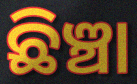
ଛିଞ୍ଚା